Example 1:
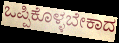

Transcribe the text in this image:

ಒಪ್ಪಿಕೊಳ್ಳಬೇಕಾದ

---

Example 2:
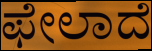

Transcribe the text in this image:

ಫೇಲಾದೆ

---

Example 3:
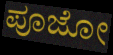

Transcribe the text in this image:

ಪೂಜೋ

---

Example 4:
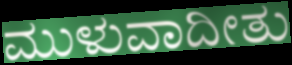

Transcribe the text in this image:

ಮುಳುವಾದೀತು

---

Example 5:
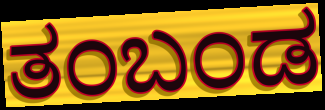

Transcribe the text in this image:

ತಂಬಂಡ